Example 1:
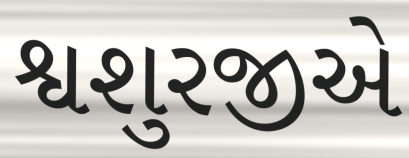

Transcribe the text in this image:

શ્વશુરજીએ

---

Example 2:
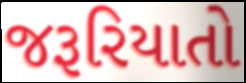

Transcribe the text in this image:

જરૂરિયાતો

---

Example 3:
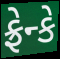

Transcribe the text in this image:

ફ્રેન્કે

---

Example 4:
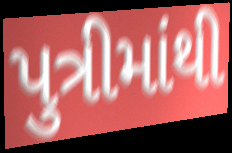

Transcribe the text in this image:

પુત્રીમાંથી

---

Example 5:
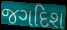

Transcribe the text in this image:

જગદિશ